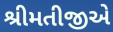
શ્રીમતીજીએ